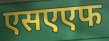
एसएएफ